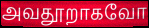
அவதூறாகவோ